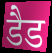
डैड